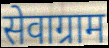
सेवाग्राम